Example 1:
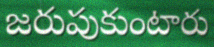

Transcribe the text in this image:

జరుపుకుంటారు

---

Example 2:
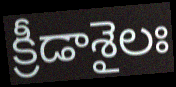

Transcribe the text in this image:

క్రీడాశైలః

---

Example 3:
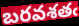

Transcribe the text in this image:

బరవశతఁ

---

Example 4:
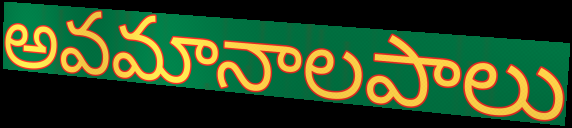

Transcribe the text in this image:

అవమానాలపాలు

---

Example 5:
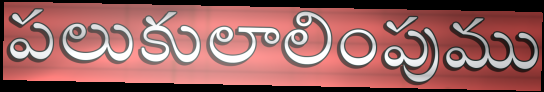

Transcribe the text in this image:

పలుకులాలింపుము